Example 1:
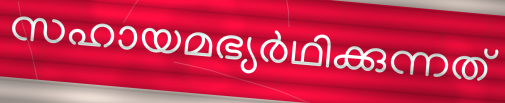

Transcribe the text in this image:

സഹായമഭ്യർഥിക്കുന്നത്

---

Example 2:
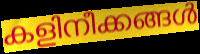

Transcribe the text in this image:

കളിനീക്കങ്ങൾ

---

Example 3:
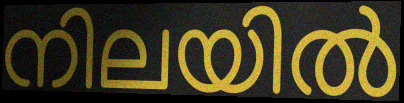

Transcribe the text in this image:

നിലയിൽ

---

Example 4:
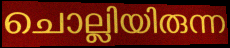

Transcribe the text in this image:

ചൊല്ലിയിരുന്ന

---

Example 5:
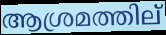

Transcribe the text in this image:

ആശ്രമത്തില്